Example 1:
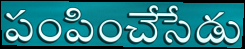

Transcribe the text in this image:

పంపించేసేడు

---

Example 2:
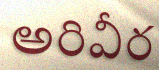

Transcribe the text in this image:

అరివీర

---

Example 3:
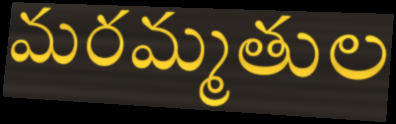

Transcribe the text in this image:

మరమ్మతుల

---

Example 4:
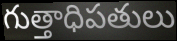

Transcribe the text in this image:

గుత్తాధిపతులు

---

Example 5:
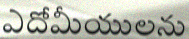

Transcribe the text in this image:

ఎదోమీయులను